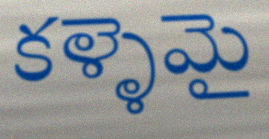
కళ్ళెమై